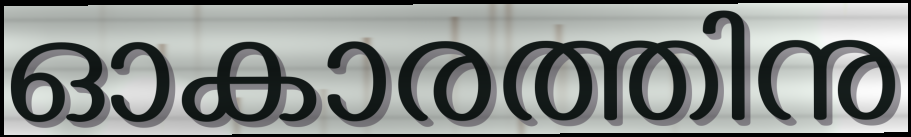
ഓകാരത്തിനു